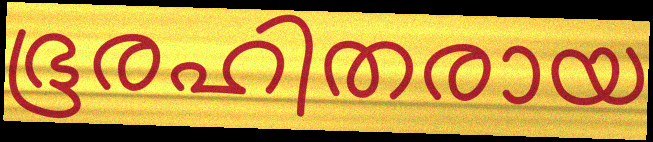
ഭൂരഹിതരായ